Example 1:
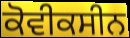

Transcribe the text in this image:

ਕੋਵੀਕਸੀਨ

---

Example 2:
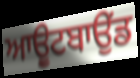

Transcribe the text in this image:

ਆਊਟਬਾਉਂਡ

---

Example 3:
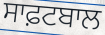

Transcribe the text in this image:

ਸਾਫ਼ਟਬਾਲ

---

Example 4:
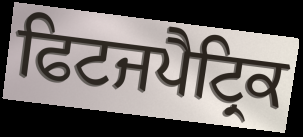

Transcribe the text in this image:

ਫਿਟਜਪੈਟ੍ਰਿਕ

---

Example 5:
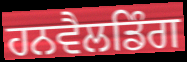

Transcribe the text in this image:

ਹਨਵੈਲਡਿੰਗ